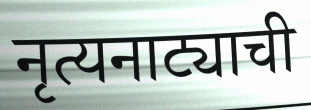
नृत्यनाट्याची